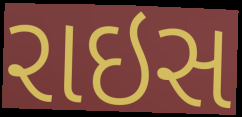
રાઇસ